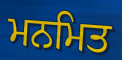
ਮਨਮਿਤ